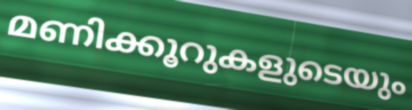
മണിക്കൂറുകളുടെയും